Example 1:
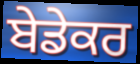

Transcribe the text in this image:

ਬੇਡੇਕਰ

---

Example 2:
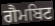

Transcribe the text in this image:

ਗੈਮਬਿਟ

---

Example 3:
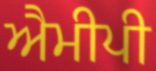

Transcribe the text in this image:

ਐਮੀਪੀ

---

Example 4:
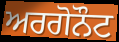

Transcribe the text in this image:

ਅਰਗੋਨੌਟ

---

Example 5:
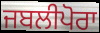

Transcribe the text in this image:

ਜਬਲੀਪੋਰਾ